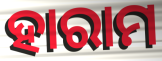
ହାରାମ